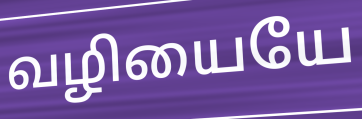
வழியையே